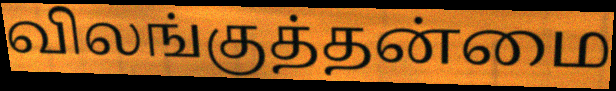
விலங்குத்தன்மை